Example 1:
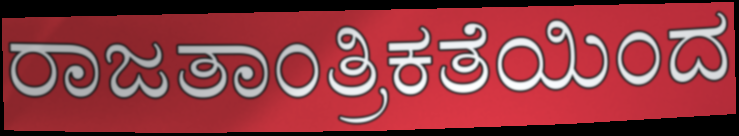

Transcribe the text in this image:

ರಾಜತಾಂತ್ರಿಕತೆಯಿಂದ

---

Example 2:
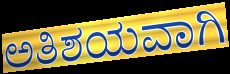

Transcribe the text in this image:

ಅತಿಶಯವಾಗಿ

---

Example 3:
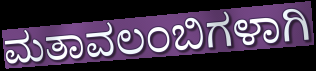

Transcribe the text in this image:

ಮತಾವಲಂಬಿಗಳಾಗಿ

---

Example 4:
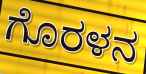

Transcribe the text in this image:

ಗೊರಳನ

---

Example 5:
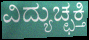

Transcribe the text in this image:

ವಿದ್ಯುಚ್ಛಕ್ತಿ